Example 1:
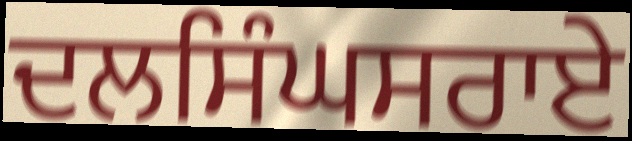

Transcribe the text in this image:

ਦਲਸਿੰਘਸਰਾਏ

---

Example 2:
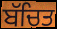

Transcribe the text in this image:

ਬੱਚਿਤ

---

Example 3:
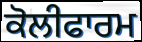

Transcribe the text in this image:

ਕੋਲੀਫਾਰਮ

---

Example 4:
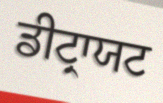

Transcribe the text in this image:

ਡੀਟ੍ਰਾਯਟ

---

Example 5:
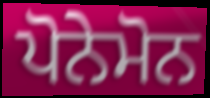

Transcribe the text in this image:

ਪੋਨੇਮੋਨ